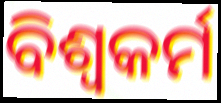
ବିଶ୍ୱକର୍ମ